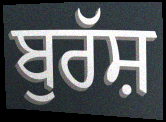
ਬੁਰੱਸ਼